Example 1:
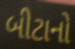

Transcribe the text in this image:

બીટાનો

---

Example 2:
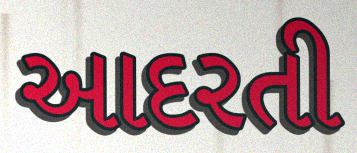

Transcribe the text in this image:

આદરતી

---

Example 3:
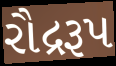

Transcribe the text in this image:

રૌદ્રરૂપ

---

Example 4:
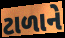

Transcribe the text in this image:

ટાળાને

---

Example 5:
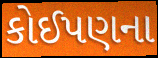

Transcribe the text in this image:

કોઈપણના